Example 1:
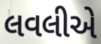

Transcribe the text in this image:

લવલીએ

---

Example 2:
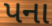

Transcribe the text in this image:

પના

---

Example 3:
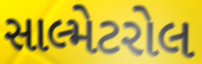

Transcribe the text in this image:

સાલ્મેટરોલ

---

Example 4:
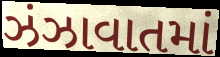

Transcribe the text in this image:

ઝંઝાવાતમાં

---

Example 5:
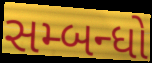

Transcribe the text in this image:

સમ્બન્ધો